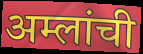
अम्‍लांची